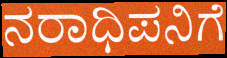
ನರಾಧಿಪನಿಗೆ